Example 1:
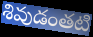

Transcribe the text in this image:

శివుడంతటి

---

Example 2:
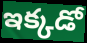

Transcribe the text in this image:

ఇక్కడో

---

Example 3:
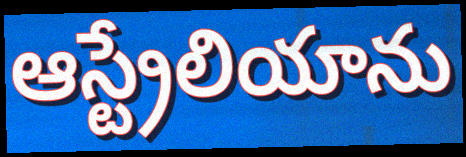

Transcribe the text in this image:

ఆస్ట్రేలియాను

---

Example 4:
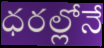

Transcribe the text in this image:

ధరల్లోనే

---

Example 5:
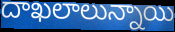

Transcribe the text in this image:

దాఖలాలున్నాయి